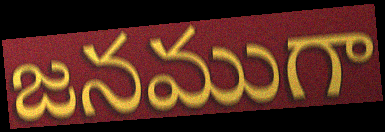
జనముగా